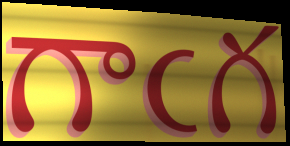
గాఁగ